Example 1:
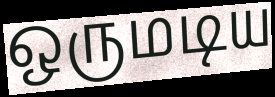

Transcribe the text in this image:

ஒருமடிய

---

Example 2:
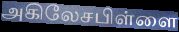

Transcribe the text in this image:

அகிலேசபிள்ளை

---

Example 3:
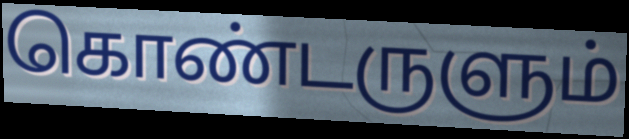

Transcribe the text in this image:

கொண்டருளும்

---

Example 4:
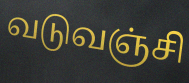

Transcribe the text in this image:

வடுவஞ்சி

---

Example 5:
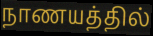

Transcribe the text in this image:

நாணயத்தில்